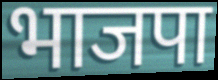
भाजपा